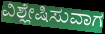
ವಿಶ್ಲೇಷಿಸುವಾಗ